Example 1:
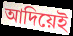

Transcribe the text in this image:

আদিয়েই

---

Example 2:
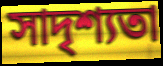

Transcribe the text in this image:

সাদৃশ্যতা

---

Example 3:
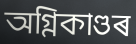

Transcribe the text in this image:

অগ্নিকাণ্ডৰ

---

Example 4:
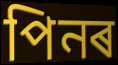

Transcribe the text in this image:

পিনৰ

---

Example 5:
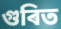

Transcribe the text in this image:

গুৰিত